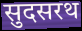
सुदसरथ